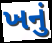
ખનું